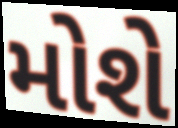
મોશે